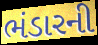
ભંડારની